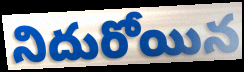
నిదురోయిన